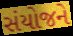
સંયોજને